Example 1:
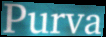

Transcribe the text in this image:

Purva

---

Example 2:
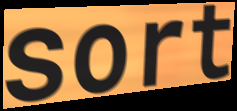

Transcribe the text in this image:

sort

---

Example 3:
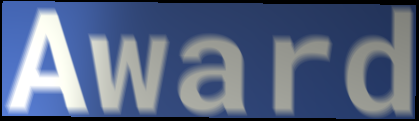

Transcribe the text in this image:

Award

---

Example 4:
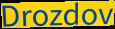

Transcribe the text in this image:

Drozdov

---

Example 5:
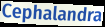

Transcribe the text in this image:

Cephalandra